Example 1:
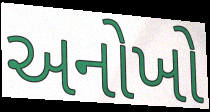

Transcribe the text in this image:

અનોખો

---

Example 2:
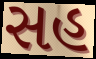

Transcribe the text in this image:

સહ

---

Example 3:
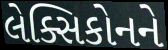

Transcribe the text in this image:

લેક્સિકોનને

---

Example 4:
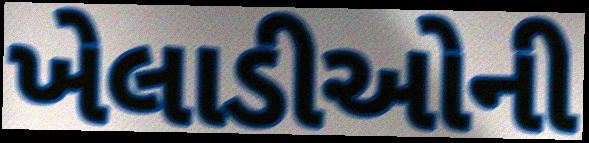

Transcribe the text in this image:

ખેલાડીઓની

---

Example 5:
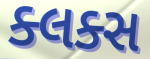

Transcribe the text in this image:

ક્લક્સ